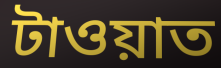
টাওয়াত